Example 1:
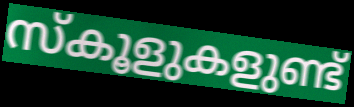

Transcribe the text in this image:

സ്കൂളുകളുണ്ട്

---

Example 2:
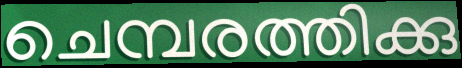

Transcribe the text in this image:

ചെമ്പരത്തിക്കു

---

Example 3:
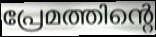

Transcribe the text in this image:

പ്രേമത്തിന്റെ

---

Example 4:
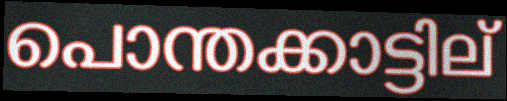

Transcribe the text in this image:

പൊന്തക്കാട്ടില്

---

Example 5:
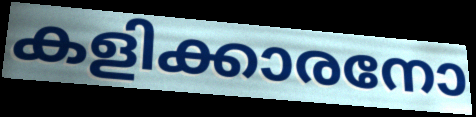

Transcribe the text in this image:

കളിക്കാരനോ